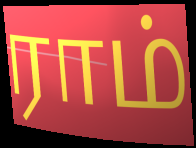
ராம்